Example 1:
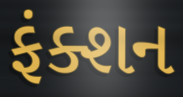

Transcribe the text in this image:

ફંક્શન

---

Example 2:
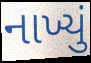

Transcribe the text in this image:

નાખ્યું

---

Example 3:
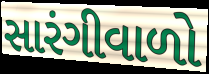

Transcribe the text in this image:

સારંગીવાળો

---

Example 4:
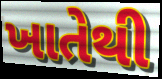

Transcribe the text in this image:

ખાતેથી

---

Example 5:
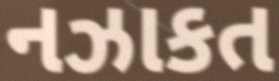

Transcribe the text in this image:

નઝાકત